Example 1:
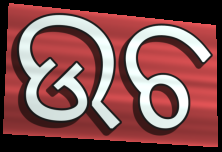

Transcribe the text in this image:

ଉଚ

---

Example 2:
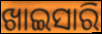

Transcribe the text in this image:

ଖାଇସାରି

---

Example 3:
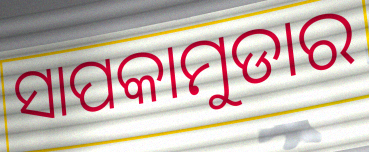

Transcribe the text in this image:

ସାପକାମୁଡାର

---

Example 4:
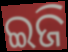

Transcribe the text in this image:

ଇଜି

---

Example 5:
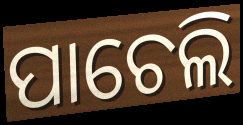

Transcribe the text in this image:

ପାଚେଲି